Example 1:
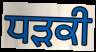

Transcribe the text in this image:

ਧੜਕੀ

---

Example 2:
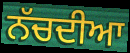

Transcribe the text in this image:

ਨੱਚਦੀਆ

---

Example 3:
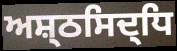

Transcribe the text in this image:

ਅਸ਼੍ਠਸਿਦ੍ਧਿ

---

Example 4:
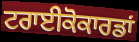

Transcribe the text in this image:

ਟਰਾਈਕੋਕਾਰਡਾਂ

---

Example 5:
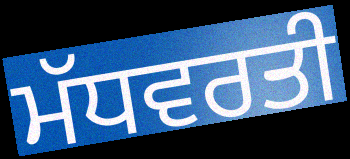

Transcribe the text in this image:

ਮੱਧਵਰਤੀ